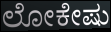
ಲೋಕೇಷು